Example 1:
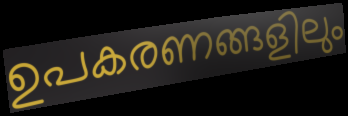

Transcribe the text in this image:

ഉപകരണങ്ങളിലും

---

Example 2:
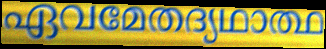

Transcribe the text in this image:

ഏവമേതദ്യഥാത്ഥ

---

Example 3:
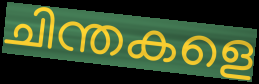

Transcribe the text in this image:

ചിന്തകളെ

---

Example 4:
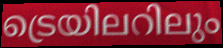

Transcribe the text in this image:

ട്രെയിലറിലും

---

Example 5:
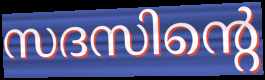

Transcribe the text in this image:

സദസിന്റെ